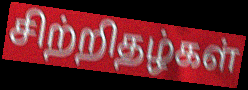
சிற்றிதழ்கள்